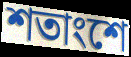
শতাংশে